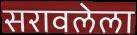
सरावलेला